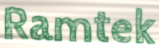
Ramtek